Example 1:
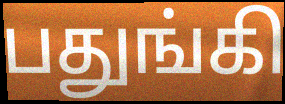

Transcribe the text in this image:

பதுங்கி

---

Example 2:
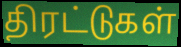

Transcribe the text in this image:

திரட்டுகள்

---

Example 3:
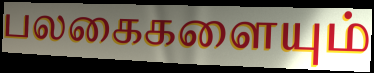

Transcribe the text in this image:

பலகைகளையும்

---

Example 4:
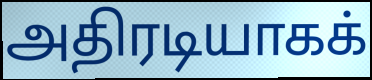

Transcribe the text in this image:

அதிரடியாகக்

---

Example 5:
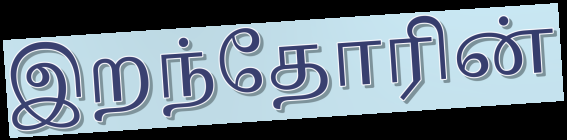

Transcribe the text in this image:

இறந்தோரின்